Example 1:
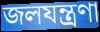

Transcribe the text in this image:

জলযন্ত্রণা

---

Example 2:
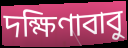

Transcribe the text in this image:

দক্ষিণাবাবু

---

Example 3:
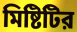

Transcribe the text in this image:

মিষ্টিটির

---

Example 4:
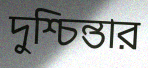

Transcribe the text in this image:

দুশ্চিন্তার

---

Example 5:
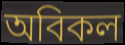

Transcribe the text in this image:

অবিকল